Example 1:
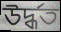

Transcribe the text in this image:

উৰ্দ্ধত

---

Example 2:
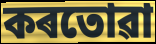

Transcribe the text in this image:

কৰতোৱা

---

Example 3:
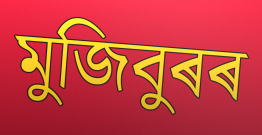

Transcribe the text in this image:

মুজিবুৰৰ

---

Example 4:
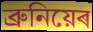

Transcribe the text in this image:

ব্ৰুনিয়েৰ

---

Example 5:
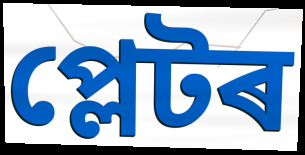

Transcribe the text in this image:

প্লেটৰ